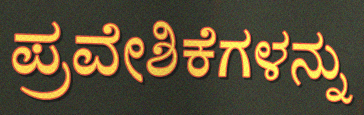
ಪ್ರವೇಶಿಕೆಗಳನ್ನು